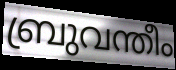
ബ്രുവന്തീം